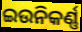
ଇଉନିକର୍ଣ୍ଣ